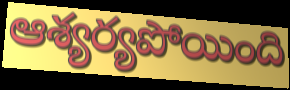
ఆశ్యర్యపోయింది